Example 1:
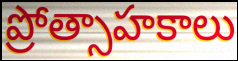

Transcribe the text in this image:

ప్రోత్సాహకాలు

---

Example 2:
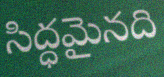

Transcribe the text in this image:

సిద్ధమైనది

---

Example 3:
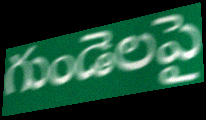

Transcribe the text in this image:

గుండెలపై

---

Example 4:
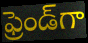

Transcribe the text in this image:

ఫ్రెండ్‌గా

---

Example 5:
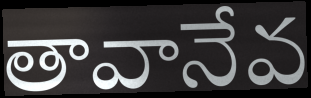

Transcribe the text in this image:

తావానేవ